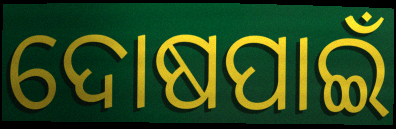
ଦୋଷପାଇଁ